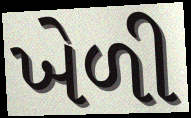
ખેળી